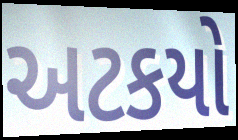
અટકયો